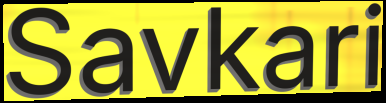
Savkari